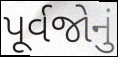
પૂર્વજોનું